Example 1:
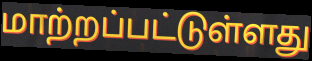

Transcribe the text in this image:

மாற்றப்பட்டுள்ளது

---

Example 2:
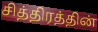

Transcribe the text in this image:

சித்திரத்தின்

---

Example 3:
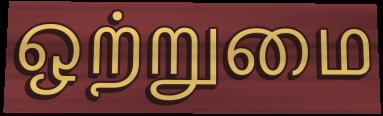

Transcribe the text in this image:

ஒற்றுமை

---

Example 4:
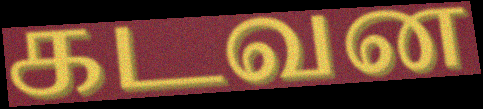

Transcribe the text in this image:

கடவன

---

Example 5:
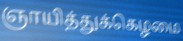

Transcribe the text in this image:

ஞாயித்துக்கெழமை